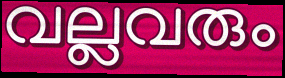
വല്ലവരും